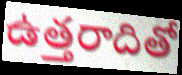
ఉత్తరాదితో